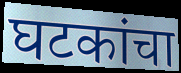
घटकांचा